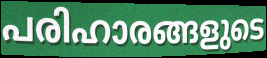
പരിഹാരങ്ങളുടെ